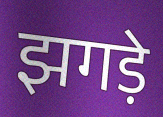
झगड़े